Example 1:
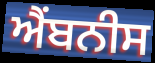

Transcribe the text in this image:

ਐਂਬਨੀਸ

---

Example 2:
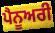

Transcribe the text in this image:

ਪੈਨੂਅਰੀ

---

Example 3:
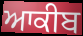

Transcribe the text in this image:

ਆਕੀਬ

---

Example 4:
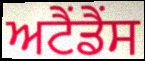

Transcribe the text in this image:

ਅਟੈਂਡੈਂਸ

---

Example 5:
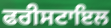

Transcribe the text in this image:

ਫਰੀਸਟਾਇਲ